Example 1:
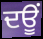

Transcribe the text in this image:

ਦਊਂ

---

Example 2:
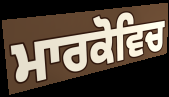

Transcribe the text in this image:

ਮਾਰਕੋਵਿਚ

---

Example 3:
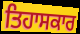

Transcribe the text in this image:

ਤਿਹਾਸਕਾਰ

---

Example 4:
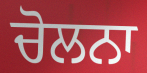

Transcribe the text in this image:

ਚੋਲਨਾ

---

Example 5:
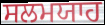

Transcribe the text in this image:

ਸਲਮਯਾਹ